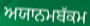
ਅਯਾਨਮਬੱਕਮ